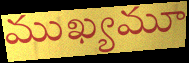
ముఖ్యమూ